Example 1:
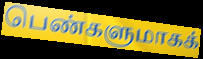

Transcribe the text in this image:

பெண்களுமாகக்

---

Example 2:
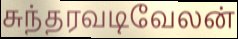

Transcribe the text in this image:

சுந்தரவடிவேலன்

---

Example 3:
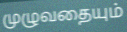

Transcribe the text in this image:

முழுவதையும்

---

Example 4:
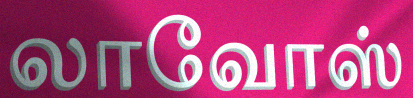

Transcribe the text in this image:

லாவோஸ்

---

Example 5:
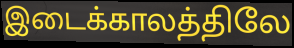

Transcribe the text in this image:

இடைக்காலத்திலே